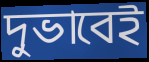
দুভাবেই